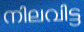
നിലവിട്ട